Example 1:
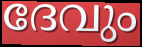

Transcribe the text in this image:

ദേവും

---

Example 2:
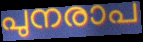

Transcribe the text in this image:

പുനരാപ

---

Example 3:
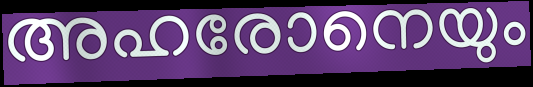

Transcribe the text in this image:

അഹരോനെയും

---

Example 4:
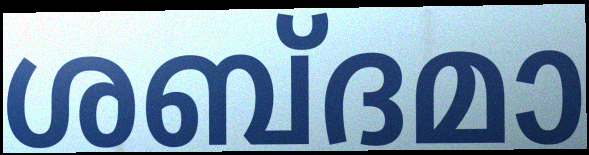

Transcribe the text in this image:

ശബ്ദമാ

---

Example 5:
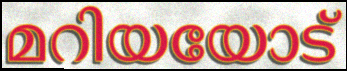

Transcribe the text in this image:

മറിയയോട്